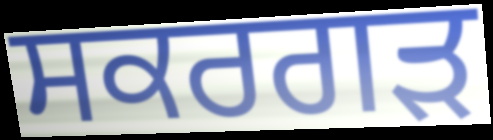
ਸਕਰਗੜ